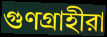
গুণগ্রাহীরা